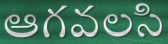
ఆగవలసి